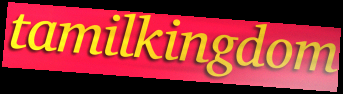
tamilkingdom